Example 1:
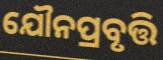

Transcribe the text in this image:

ଯୌନପ୍ରବୃତ୍ତି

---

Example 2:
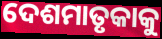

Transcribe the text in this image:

ଦେଶମାତୃକାକୁ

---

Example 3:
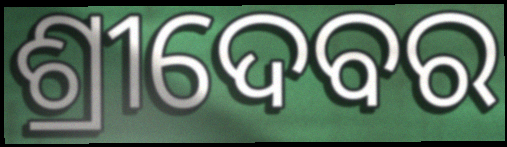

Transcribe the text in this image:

ଶ୍ରୀଦେବର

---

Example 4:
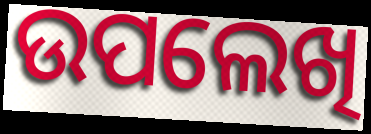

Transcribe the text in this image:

ଉପଲେଖି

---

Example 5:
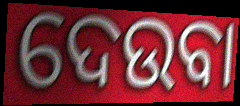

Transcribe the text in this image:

ଦେଉବା